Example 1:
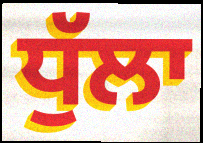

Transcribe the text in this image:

ਧੁੱਲਾ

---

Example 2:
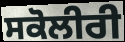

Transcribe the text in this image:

ਸਕੋਲੀਰੀ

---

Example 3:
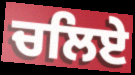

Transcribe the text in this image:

ਚਲਿਏ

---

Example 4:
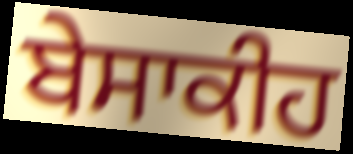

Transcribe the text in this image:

ਬੇਸਾਕੀਹ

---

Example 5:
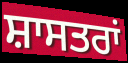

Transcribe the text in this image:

ਸ਼ਾਸਤਰਾਂ